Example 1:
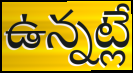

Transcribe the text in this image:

ఉన్నట్లే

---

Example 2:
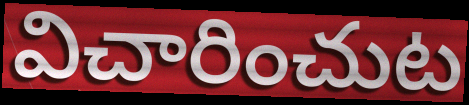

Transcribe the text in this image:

విచారించుట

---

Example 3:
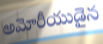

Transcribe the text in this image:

అమోరీయుడైన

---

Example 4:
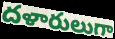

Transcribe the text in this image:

దళారులుగా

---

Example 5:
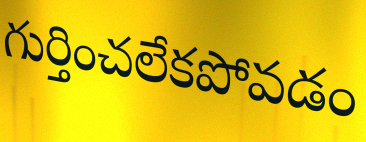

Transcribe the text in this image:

గుర్తించలేకపోవడం